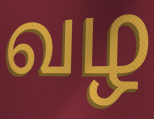
வழ